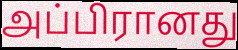
அப்பிரானது